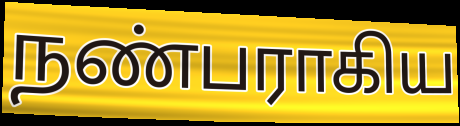
நண்பராகிய